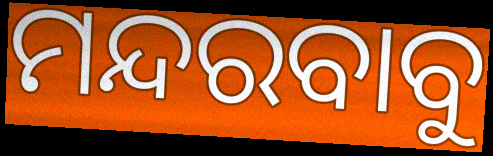
ମନ୍ଦରବାବୁ